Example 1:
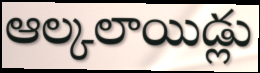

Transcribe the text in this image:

ఆల్కలాయిడ్లు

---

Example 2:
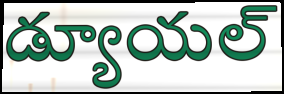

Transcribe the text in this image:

డ్యూయల్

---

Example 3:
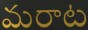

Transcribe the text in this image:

మరాట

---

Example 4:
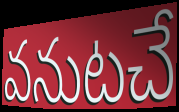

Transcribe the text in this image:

వనుటచే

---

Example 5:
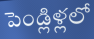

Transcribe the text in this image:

పెండ్లిళ్లలో